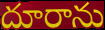
దూరాను